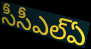
సీసీఎల్ఏ